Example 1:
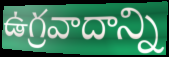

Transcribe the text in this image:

ఉగ్రవాదాన్ని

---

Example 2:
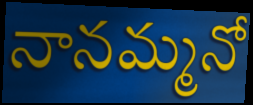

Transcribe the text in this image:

నానమ్మనో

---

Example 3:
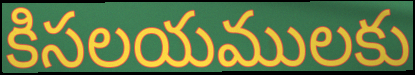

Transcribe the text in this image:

కిసలయములకు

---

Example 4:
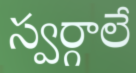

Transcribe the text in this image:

స్వర్గాలే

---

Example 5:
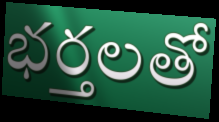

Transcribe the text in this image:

భర్తలతో